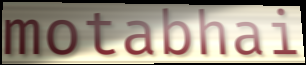
motabhai